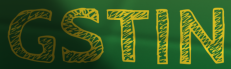
GSTIN